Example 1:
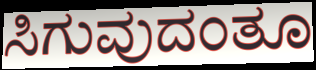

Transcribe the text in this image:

ಸಿಗುವುದಂತೂ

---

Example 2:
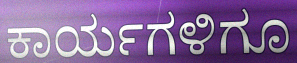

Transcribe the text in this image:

ಕಾರ್ಯಗಳಿಗೂ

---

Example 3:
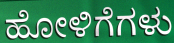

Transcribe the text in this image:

ಹೋಳಿಗೆಗಳು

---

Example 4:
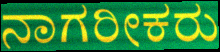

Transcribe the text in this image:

ನಾಗರೀಕರು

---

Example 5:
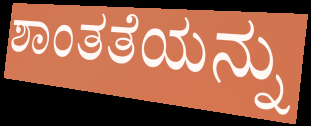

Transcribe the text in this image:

ಶಾಂತತೆಯನ್ನು